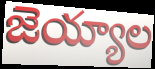
జెయ్యాల